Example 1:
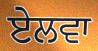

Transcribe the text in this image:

ਏਲਵਾ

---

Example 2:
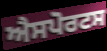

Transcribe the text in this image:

ਐਸਪੋਰਟਸ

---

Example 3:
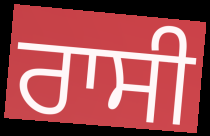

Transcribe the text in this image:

ਰਾਸੀ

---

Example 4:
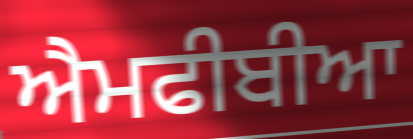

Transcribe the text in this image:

ਐਮਫੀਬੀਆ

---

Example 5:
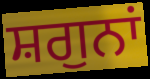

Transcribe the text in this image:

ਸ਼ਗੁਨਾਂ